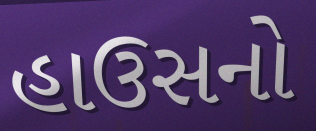
હાઉસનો